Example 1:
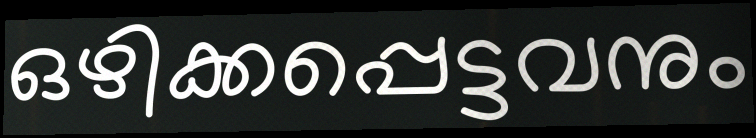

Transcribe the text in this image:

ഒഴിക്കപ്പെട്ടവനും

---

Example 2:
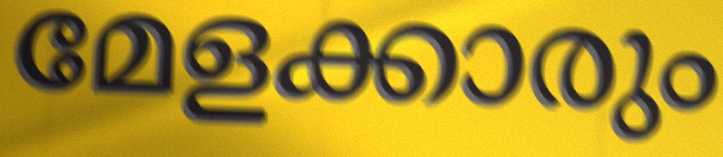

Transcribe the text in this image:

മേളക്കാരും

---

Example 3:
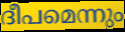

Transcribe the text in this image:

ദീപമെന്നും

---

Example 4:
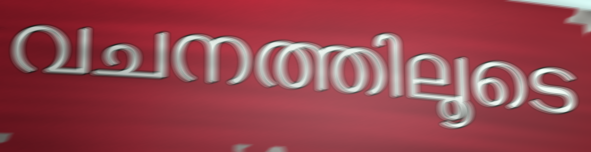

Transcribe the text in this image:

വചനത്തിലൂടെ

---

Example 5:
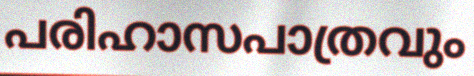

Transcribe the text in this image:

പരിഹാസപാത്രവും